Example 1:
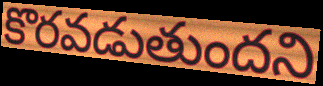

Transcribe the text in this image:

కొరవడుతుందని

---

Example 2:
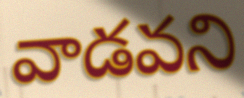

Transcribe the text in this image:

వాడవని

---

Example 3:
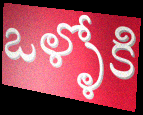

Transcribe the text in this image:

ఒళ్ళోకి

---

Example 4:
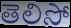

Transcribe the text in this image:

తెలిసో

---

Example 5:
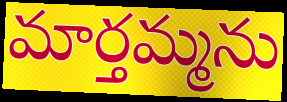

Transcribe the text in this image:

మార్తమ్మను